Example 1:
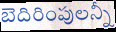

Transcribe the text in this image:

బెదిరింపులన్నీ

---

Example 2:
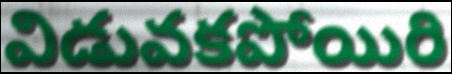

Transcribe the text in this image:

విడువకపోయిరి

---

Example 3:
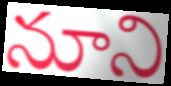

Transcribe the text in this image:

నూని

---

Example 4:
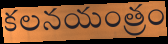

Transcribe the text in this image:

కలనయంత్రం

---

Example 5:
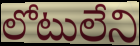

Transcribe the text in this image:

లోటులేని